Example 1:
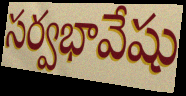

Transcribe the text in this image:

సర్వభావేషు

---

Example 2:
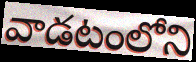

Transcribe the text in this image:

వాడటంలోని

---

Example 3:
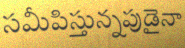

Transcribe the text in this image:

సమీపిస్తున్నపుడైనా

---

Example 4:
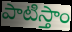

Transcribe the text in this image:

పాటిస్తాం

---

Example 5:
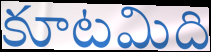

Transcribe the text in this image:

కూటమిది